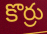
కొర్రు